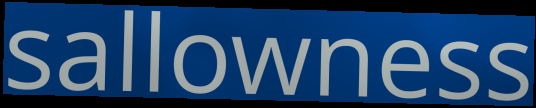
sallowness